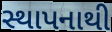
સ્થાપનાથી